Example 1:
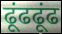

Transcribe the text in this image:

ढूंढढूंढ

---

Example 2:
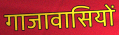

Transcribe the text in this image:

गाजावासियों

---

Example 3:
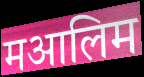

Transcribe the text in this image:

मआलिम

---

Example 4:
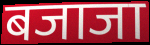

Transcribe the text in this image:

बजाजा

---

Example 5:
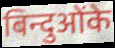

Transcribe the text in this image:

बिन्दुओंके